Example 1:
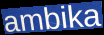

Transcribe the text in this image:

ambika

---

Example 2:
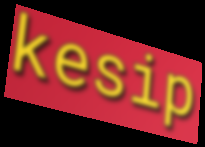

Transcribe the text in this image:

kesip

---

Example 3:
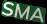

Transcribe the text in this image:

SMA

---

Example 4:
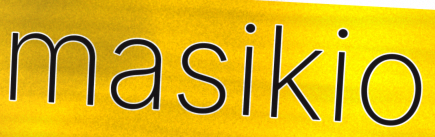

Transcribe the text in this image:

masikio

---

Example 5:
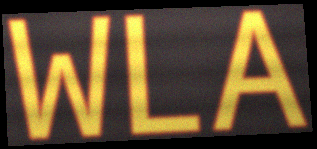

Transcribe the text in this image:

WLA